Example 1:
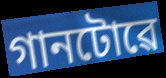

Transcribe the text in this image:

গানটোৱে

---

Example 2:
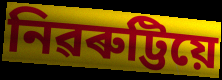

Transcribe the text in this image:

নিৱৰুট্টিয়ে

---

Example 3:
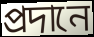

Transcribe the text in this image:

প্ৰদানে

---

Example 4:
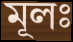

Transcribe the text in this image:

মূলঃ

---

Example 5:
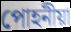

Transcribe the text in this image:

পোহনীয়া